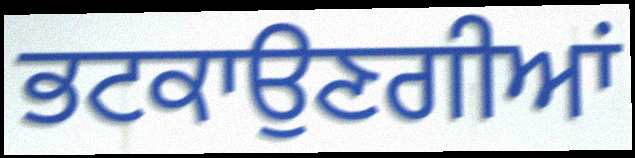
ਭਟਕਾਉਣਗੀਆਂ